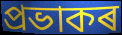
প্ৰভাকৰ